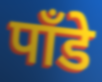
पाँडे